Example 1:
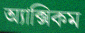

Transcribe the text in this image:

অ্যাক্সিকম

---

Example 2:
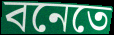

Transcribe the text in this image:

বনেতে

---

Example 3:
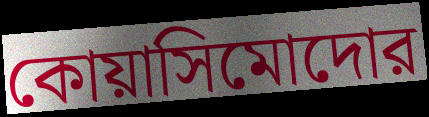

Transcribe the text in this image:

কোয়াসিমোদোর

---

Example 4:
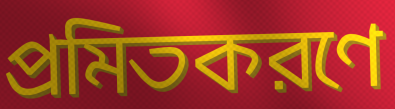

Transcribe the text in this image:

প্রমিতকরণে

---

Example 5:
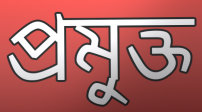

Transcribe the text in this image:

প্রমুক্ত